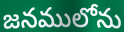
జనములోను